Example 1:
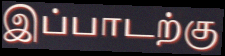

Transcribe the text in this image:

இப்பாடற்கு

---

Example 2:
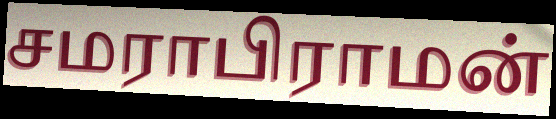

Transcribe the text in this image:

சமராபிராமன்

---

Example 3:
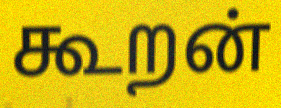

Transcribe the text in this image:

கூறன்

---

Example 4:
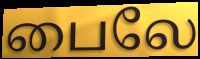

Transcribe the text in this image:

பைலே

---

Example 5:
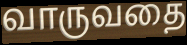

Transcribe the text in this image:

வாருவதை